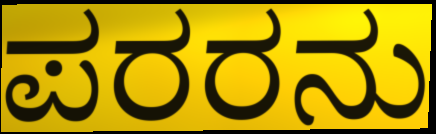
ಪರರನು